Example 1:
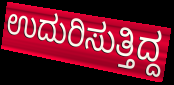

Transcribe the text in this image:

ಉದುರಿಸುತ್ತಿದ್ದ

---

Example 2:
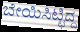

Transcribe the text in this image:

ಬೇಯಿಸಿಟ್ಟಿದ್ದ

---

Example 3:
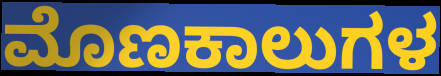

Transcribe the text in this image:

ಮೊಣಕಾಲುಗಳ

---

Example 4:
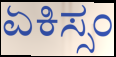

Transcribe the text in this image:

ಏಕಿಸ್ಸಂ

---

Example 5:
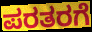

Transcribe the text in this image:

ಪರತರಗೆ